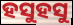
ହସୁହସୁ